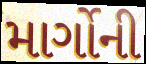
માર્ગોની